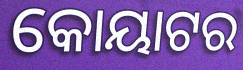
କୋୟାଟର